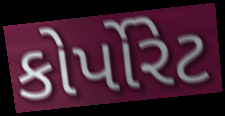
કોર્પોરેટ